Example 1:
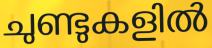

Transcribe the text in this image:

ചുണ്ടുകളിൽ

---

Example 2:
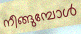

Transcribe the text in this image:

നീങ്ങുമ്പോൾ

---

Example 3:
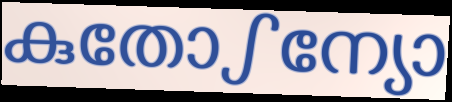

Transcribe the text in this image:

കുതോഽന്യോ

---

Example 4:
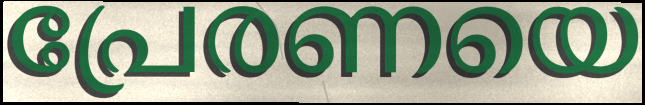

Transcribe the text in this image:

പ്രേരണയെ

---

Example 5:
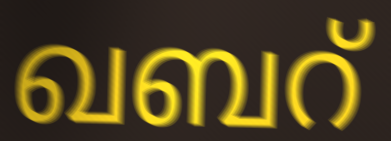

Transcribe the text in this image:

ഖബറ്